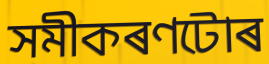
সমীকৰণটোৰ